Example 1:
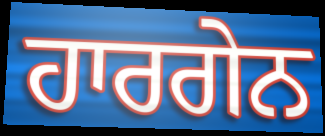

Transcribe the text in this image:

ਹਾਰਗੇਨ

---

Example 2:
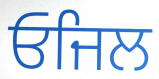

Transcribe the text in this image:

ਓਜਿਲ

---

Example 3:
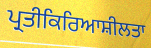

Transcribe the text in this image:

ਪ੍ਰਤੀਕਿਰਿਆਸ਼ੀਲਤਾ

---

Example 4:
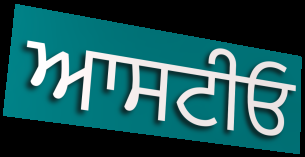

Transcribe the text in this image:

ਆਸਟੀਓ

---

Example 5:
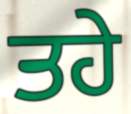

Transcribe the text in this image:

ਤਹੇ